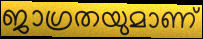
ജാഗ്രതയുമാണ്